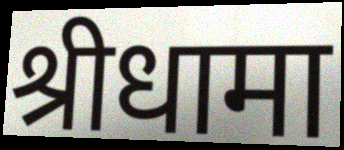
श्रीधामा